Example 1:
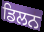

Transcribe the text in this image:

ਡਿਲਨ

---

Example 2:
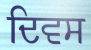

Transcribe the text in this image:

ਦਿਵਸ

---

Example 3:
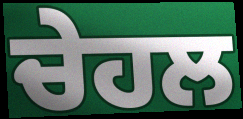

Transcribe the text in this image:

ਚੇਹਲ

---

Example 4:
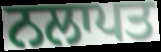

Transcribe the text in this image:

ਨਲਾਪਤ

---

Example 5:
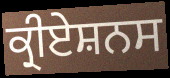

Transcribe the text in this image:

ਕ੍ਰੀਏਸ਼ਨਸ